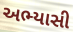
અભ્યાસી